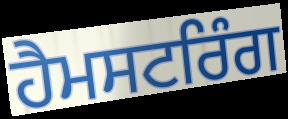
ਹੈਮਸਟਰਿੰਗ